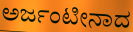
ಅರ್ಜಂಟೀನಾದ